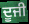
ਦੂਜੀ